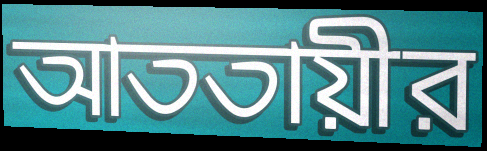
আততায়ীর